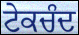
ਟੇਕਚੰਦ